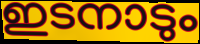
ഇടനാടും